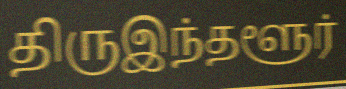
திருஇந்தளூர்